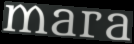
mara